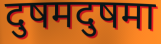
दुषमदुषमा